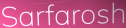
Sarfarosh